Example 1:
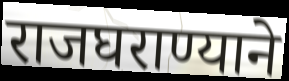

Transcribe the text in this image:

राजघराण्याने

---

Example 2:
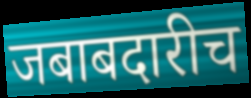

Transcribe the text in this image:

जबाबदारीच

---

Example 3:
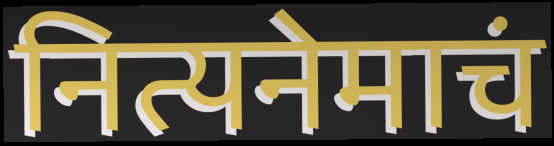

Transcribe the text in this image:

नित्यनेमाचं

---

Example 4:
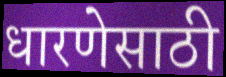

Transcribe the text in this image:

धारणेसाठी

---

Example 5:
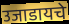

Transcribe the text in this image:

उजाडायचे